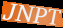
JNPT